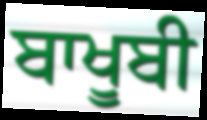
ਬਾਖੂਬੀ